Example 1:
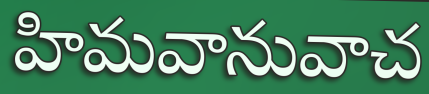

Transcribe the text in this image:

హిమవానువాచ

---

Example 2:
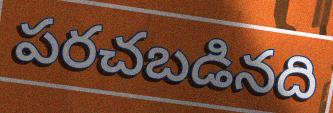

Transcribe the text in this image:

పరచబడినది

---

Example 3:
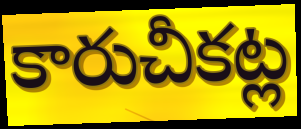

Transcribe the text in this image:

కారుచీకట్ల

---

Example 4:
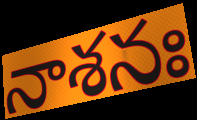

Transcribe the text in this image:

నాశనః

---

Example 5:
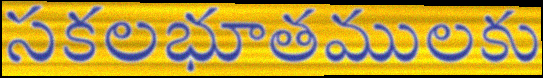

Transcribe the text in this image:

సకలభూతములకు